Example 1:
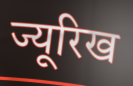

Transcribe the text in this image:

ज्यूरिख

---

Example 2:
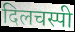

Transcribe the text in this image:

दिलचस्पी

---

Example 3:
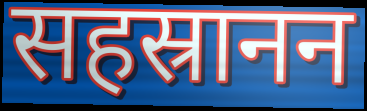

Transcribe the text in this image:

सहस्रानन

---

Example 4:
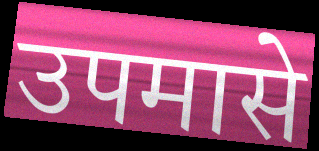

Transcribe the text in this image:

उपमासे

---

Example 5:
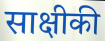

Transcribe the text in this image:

साक्षीकी